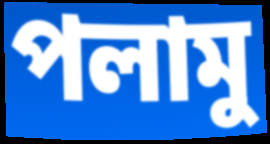
পলামু